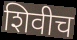
शिवीच